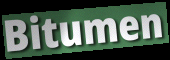
Bitumen